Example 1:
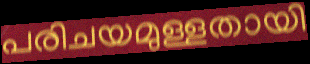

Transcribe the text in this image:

പരിചയമുള്ളതായി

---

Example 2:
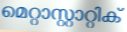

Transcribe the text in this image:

മെറ്റാസ്റ്റാറ്റിക്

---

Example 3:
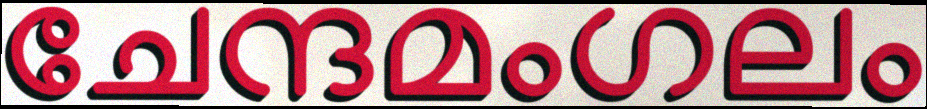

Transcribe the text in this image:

ചേന്ദമംഗലം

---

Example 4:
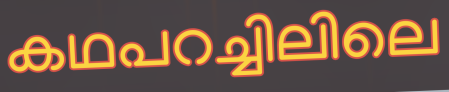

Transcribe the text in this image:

കഥപറച്ചിലിലെ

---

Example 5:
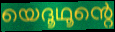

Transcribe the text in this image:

യെദൂഥൂന്റെ